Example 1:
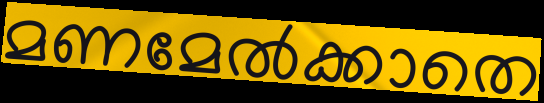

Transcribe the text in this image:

മണമേൽക്കാതെ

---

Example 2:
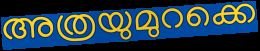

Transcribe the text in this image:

അത്രയുമുറക്കെ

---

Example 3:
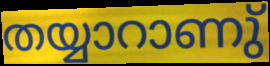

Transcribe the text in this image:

തയ്യാറാണു്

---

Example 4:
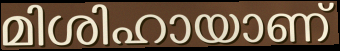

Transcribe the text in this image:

മിശിഹായാണ്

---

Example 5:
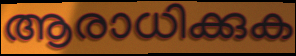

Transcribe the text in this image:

ആരാധിക്കുക